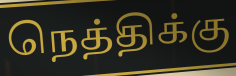
நெத்திக்கு